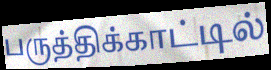
பருத்திக்காட்டில்